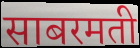
साबरमती